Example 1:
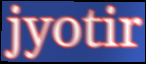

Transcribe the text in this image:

jyotir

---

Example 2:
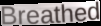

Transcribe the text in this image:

Breathed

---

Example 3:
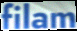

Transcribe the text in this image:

filam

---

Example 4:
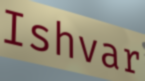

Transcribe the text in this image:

Ishvar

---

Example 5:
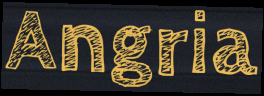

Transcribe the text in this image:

Angria